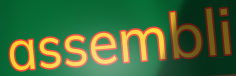
assembli